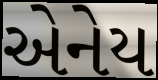
એનેય